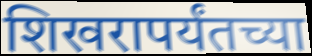
शिखरापर्यंतच्या